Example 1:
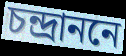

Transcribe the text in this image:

চন্দ্রাননে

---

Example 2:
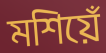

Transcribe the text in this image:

মশিয়েঁ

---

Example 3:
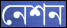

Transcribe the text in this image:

নেশন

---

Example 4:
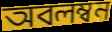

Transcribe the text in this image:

অবলম্বন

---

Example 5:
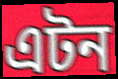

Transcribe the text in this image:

এটন